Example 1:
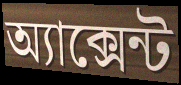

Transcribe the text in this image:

অ্যাক্সেন্ট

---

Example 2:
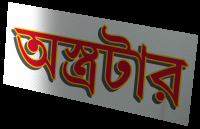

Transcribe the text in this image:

অস্ত্রটার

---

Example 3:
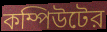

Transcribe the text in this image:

কম্পিউটের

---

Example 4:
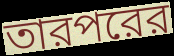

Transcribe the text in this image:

তারপরের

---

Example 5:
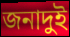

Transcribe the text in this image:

জনাদুই